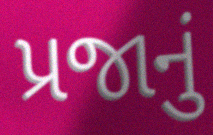
પ્રજાનું